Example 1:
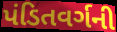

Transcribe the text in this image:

પંડિતવર્ગની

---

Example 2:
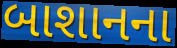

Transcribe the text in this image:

બાશાનના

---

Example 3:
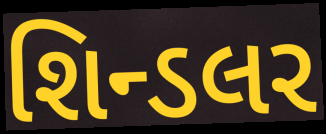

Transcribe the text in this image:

શિન્ડલર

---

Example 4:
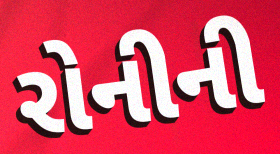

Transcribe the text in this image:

રોનીની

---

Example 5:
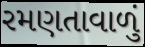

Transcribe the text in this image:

રમણતાવાળું